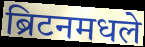
ब्रिटनमधले